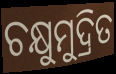
ଚକ୍ଷୁମୁଦ୍ରିତ